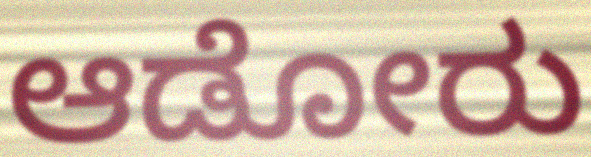
ಆಡೋರು